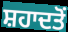
ਸ਼ਹਾਦਤੋਂ